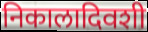
निकालादिवशी